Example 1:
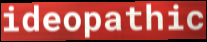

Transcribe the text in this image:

ideopathic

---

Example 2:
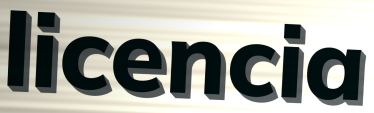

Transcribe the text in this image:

licencia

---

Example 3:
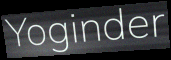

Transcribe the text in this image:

Yoginder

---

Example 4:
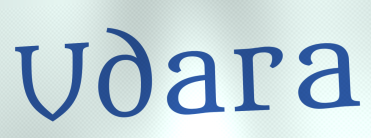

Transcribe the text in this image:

Udara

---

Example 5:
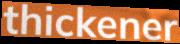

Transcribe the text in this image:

thickener